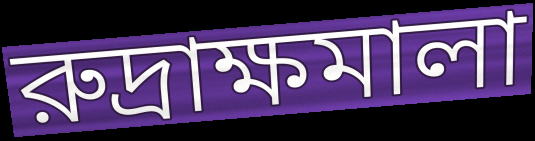
রুদ্রাক্ষমালা